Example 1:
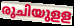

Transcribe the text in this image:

രുചിയുളള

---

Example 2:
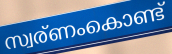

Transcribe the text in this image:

സ്വര്ണംകൊണ്ട്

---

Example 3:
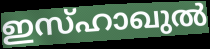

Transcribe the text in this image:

ഇസ്ഹാഖുൽ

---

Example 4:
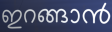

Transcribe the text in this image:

ഇറങ്ങാൻ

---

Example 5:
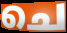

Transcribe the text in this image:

ചെ